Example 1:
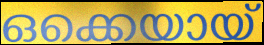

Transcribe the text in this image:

ഒക്കെയായ്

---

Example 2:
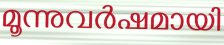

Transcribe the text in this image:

മൂന്നുവർഷമായി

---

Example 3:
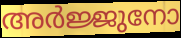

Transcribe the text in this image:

അർജ്ജുനോ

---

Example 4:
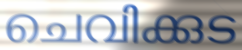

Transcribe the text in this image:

ചെവിക്കുട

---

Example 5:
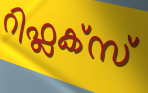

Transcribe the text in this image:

റിഫ്ലക്സ്